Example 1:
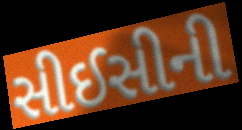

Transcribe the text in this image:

સીઈસીની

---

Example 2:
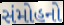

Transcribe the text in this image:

સંમોહનો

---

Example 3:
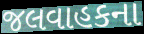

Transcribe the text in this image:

જલવાહકના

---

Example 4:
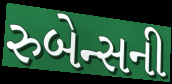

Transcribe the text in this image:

રુબેન્સની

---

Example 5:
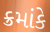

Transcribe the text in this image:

ક્રમાંકે